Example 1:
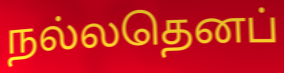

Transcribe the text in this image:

நல்லதெனப்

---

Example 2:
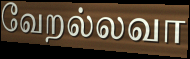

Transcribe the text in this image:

வேறல்லவா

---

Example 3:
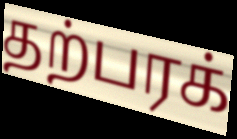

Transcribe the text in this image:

தற்பரக்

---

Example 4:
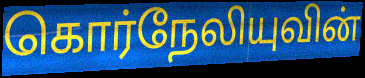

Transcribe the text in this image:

கொர்நேலியுவின்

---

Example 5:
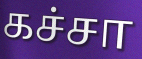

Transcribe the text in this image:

கச்சா